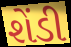
શેંડી